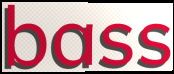
bass